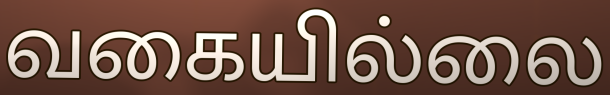
வகையில்லை